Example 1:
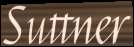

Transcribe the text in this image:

Suttner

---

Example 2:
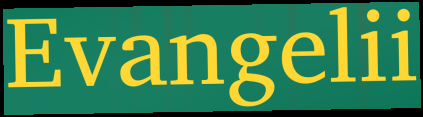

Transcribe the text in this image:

Evangelii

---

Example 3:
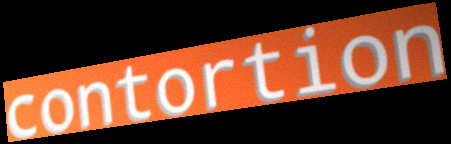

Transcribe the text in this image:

contortion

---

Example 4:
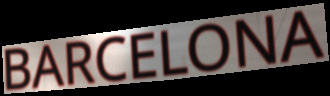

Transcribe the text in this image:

BARCELONA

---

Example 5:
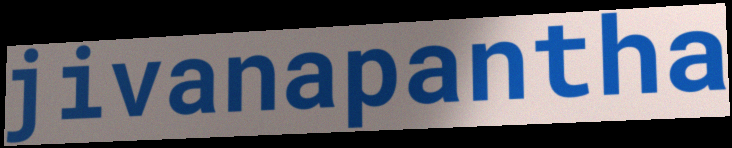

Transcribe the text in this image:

jivanapantha